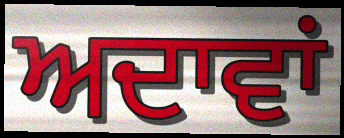
ਅਦਾਵਾਂ